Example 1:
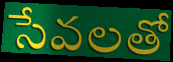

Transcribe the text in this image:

సేవలతో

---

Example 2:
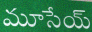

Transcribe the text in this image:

మూసేయ్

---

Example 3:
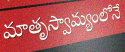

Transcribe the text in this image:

మాతృస్వామ్యంలోనే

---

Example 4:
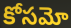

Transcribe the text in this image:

కోసమో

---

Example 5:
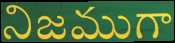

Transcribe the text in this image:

నిజముగా